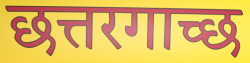
छत्तरगाच्छ